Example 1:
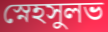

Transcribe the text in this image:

স্নেহসুলভ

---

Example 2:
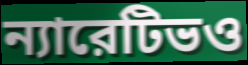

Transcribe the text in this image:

ন্যারেটিভও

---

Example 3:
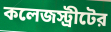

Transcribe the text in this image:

কলেজস্ট্রীটের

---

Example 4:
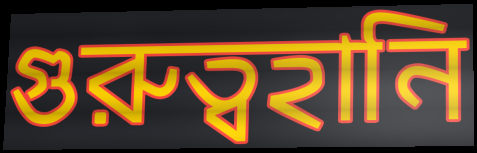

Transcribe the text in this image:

গুরুত্বহানি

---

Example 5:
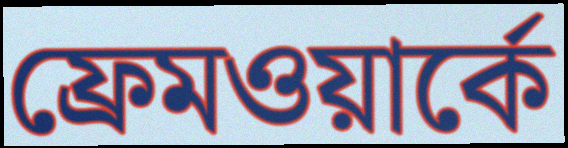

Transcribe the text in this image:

ফ্রেমওয়ার্কে